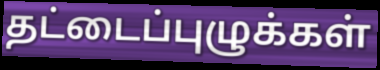
தட்டைப்புழுக்கள்